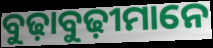
ବୁଢ଼ାବୁଢ଼ୀମାନେ